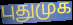
புதுமுக